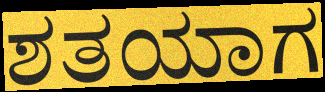
ಶತಯಾಗ